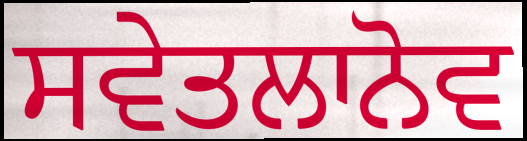
ਸਵੇਤਲਾਨੋਵ